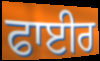
ਫਾਈਰ